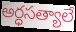
అర్ధసత్యాలే